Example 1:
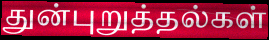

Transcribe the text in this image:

துன்புறுத்தல்கள்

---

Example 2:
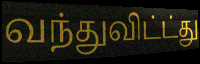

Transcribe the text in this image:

வந்துவிட்ட்து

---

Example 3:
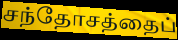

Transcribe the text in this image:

சந்தோசத்தைப்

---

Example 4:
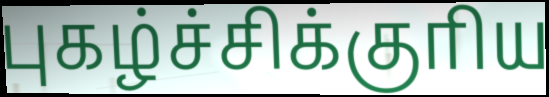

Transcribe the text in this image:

புகழ்ச்சிக்குரிய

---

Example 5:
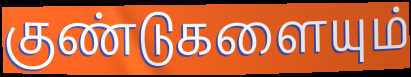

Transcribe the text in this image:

குண்டுகளையும்